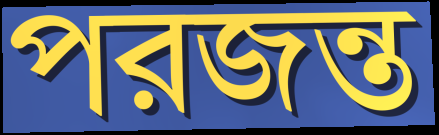
পরজন্ত